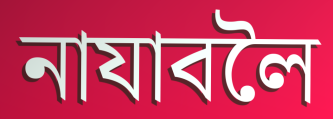
নাযাবলৈ